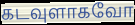
கடவுளாகவோ